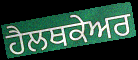
ਹੈਲਥਕੇਅਰ